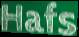
Hafs